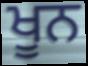
ਖੂਨ